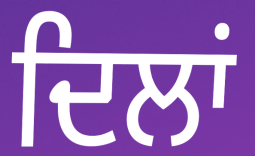
ਦਿਲਾਂ